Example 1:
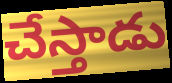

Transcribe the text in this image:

చేస్తాడు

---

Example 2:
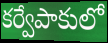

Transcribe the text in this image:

కర్వేపాకులో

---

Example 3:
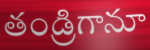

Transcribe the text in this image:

తండ్రిగానూ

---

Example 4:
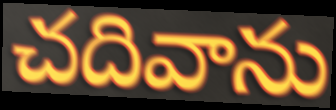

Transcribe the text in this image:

చదివాను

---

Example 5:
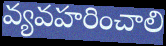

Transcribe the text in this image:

వ్యవహరించాలి